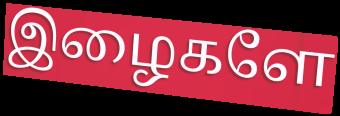
இழைகளே